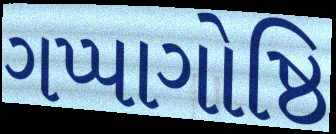
ગપ્પાગોષ્ઠિ